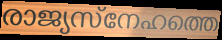
രാജ്യസ്‌നേഹത്തെ